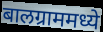
बालग्राममध्ये